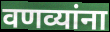
वणव्यांना